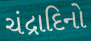
ચંદ્રાદિનો